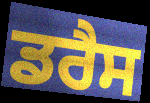
ਡਰੈਸ